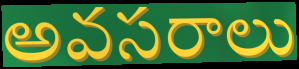
అవసరాలు